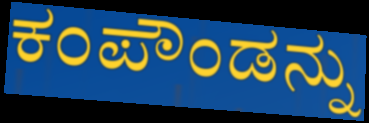
ಕಂಪೌಂಡನ್ನು